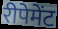
रीपेमेंट